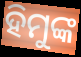
ହିମୁଙ୍କ